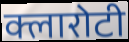
क्लारोटी